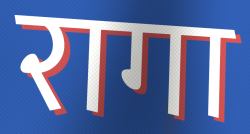
रागा